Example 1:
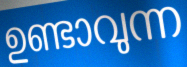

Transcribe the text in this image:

ഉണ്ടാവുന്ന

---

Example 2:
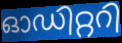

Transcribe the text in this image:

ഓഡിറ്ററി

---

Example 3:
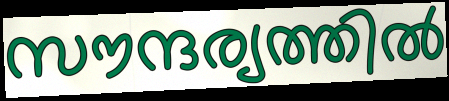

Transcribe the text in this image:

സൗന്ദര്യത്തിൽ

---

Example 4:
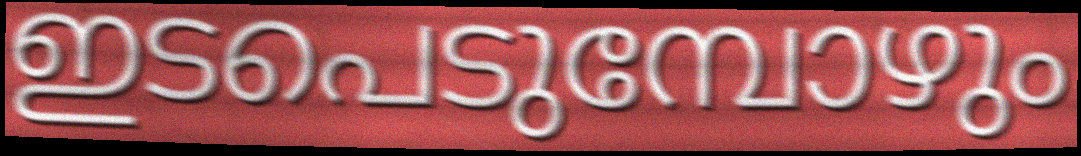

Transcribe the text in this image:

ഇടപെടുമ്പോഴും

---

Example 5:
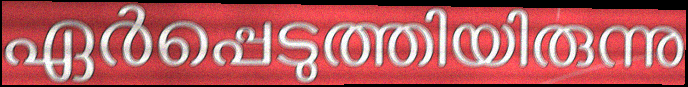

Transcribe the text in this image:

ഏർപ്പെടുത്തിയിരുന്നു